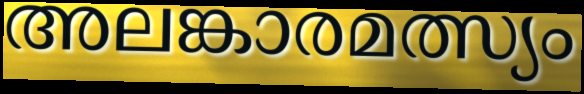
അലങ്കാരമത്സ്യം